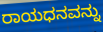
ರಾಯಧನವನ್ನು